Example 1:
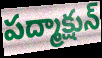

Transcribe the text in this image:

పద్మాక్షున్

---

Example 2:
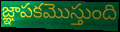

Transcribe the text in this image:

జ్ఞాపకమొస్తుంది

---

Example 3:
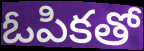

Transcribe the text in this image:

ఓపికతో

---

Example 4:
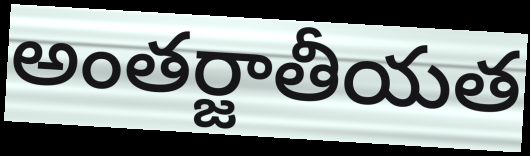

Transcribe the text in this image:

అంతర్జాతీయత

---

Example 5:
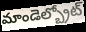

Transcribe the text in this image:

మాండెల్బ్రోట్